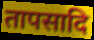
तापसादि